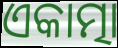
ଏକାତ୍ମା